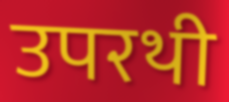
उपरथी